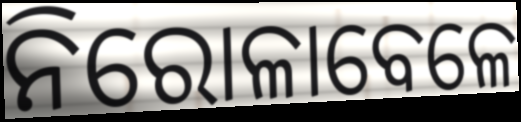
ନିରୋଳାବେଳେ